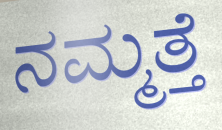
ನಮ್ಮತ್ತೆ